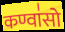
कण्वा॑सो